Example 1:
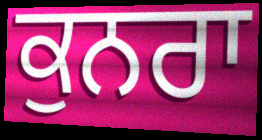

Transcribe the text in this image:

ਕੁਨਰਾ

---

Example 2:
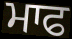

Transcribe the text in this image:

ਮਾਫ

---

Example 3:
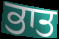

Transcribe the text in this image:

ਭਾਤ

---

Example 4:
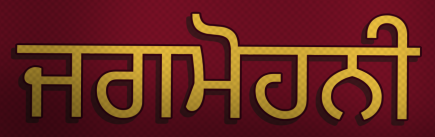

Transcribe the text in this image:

ਜਗਮੋਹਨੀ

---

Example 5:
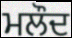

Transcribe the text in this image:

ਮਲੌਦ